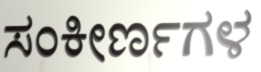
ಸಂಕೀರ್ಣಗಳ